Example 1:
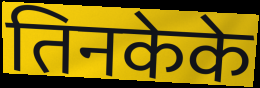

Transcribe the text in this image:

तिनकेके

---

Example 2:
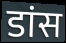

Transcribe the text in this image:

डांस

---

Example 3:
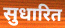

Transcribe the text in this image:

सुधारित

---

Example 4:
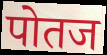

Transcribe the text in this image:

पोतज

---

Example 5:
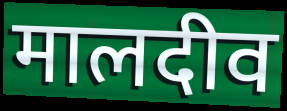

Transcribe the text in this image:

मालदीव